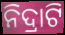
ନିଦ୍ରାଟି